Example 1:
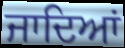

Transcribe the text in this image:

ਜਾਦਿਆਂ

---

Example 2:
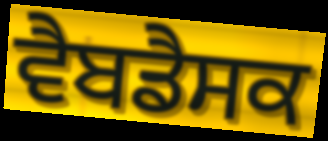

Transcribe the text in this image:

ਵੈਬਡੈਸਕ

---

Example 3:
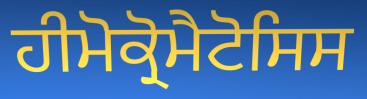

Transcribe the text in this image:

ਹੀਮੋਕ੍ਰੋਮੈਟੋਸਿਸ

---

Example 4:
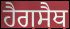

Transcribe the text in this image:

ਹੈਗਸੈਥ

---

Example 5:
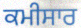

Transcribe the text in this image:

ਕਮੀਸਾਰ